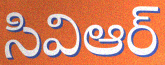
సివిఆర్